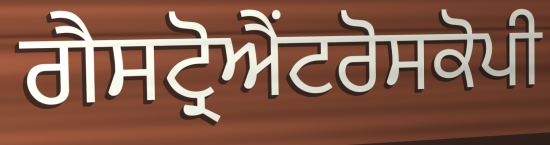
ਗੈਸਟ੍ਰੋਐਂਟਰੋਸਕੋਪੀ